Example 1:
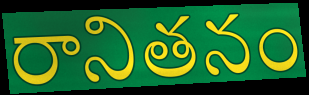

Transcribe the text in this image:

రానితనం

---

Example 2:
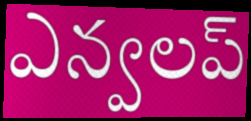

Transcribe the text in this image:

ఎన్వలప్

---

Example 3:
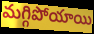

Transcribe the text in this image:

మగ్గిపోయాయి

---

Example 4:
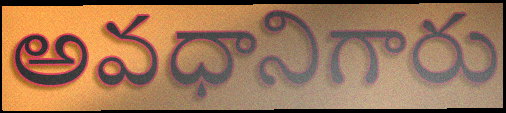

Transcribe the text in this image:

అవధానిగారు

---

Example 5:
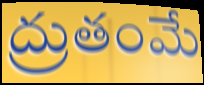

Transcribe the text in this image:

ద్రుతంమే